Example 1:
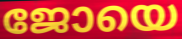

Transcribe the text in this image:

ജോയെ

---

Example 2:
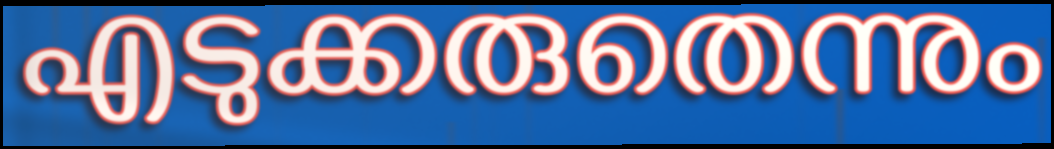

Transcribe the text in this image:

എടുക്കരുതെന്നും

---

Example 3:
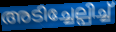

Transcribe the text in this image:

അടിച്ചേല്പിച്ച്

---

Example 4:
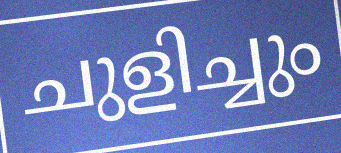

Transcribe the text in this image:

ചുളിച്ചും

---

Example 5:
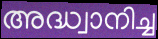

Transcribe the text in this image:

അദ്ധ്വാനിച്ച